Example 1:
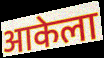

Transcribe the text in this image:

आकेला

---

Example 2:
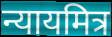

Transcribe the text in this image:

न्यायमित्र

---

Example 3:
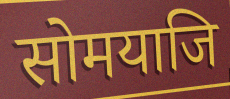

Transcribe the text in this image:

सोमयाजि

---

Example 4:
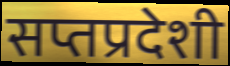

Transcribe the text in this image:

सप्तप्रदेशी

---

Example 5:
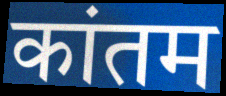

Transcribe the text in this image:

कांतम